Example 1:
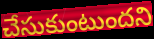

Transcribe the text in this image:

చేసుకుంటుందని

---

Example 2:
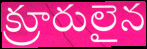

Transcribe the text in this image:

క్రూరులైన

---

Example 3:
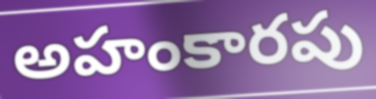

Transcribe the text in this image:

అహంకారపు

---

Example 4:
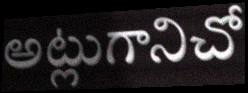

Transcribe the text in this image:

అట్లుగానిచో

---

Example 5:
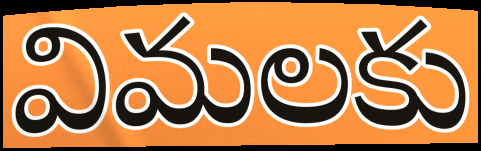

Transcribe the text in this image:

విమలకు